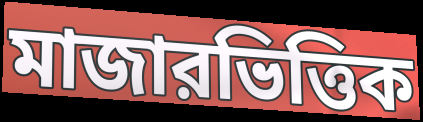
মাজারভিত্তিক